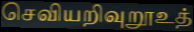
செவியறிவுறூஉத்